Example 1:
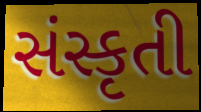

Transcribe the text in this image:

સંસ્કૃતી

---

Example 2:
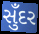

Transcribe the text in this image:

સુઁદર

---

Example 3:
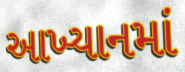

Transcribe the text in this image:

આખ્યાનમાં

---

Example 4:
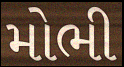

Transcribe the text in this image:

મોભી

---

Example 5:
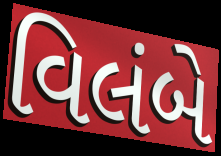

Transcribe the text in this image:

વિલંબે